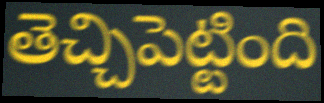
తెచ్చిపెట్టింది